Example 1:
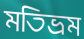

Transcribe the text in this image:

মতিভ্রম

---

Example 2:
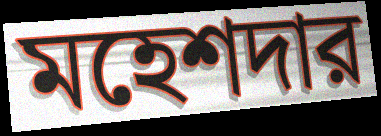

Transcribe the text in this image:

মহেশদার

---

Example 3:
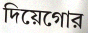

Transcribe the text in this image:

দিয়েগোর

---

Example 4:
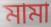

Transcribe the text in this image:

মামা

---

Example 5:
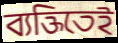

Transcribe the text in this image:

ব্যক্তিতেই